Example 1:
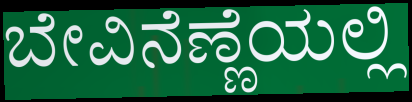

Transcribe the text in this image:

ಬೇವಿನೆಣ್ಣೆಯಲ್ಲಿ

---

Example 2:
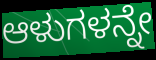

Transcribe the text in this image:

ಆಳುಗಳನ್ನೇ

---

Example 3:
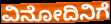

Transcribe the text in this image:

ವಿನೋದಿನಿಗೆ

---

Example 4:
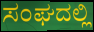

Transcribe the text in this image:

ಸಂಘದಲ್ಲಿ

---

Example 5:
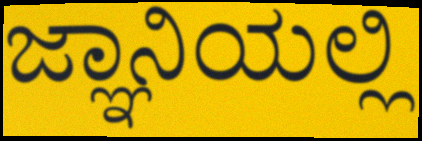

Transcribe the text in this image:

ಜ್ಞಾನಿಯಲ್ಲಿ